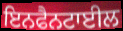
ਇਨਫੈਨਟਾਈਲ